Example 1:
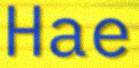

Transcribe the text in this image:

Hae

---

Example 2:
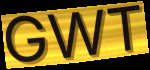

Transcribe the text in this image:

GWT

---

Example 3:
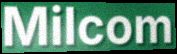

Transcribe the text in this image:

Milcom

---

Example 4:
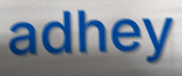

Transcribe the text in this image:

adhey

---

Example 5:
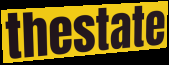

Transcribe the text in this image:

thestate